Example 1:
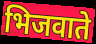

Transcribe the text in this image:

भिजवाते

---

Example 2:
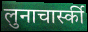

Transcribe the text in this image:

लुनाचार्स्की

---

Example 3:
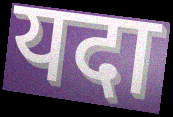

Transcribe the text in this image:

यदा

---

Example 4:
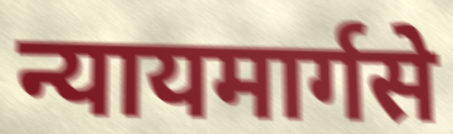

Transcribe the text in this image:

न्यायमार्गसे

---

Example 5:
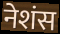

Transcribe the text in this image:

नेशंस